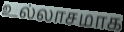
உல்லாசமாக